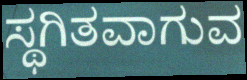
ಸ್ಥಗಿತವಾಗುವ